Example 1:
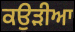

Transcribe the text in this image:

ਕਉੜੀਆ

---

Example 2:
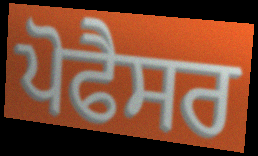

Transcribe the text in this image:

ਪੋਫੈਸਰ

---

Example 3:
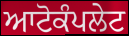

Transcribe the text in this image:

ਆਟੋਕੰਪਲੇਟ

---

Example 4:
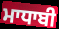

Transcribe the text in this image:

ਮਾਧਾਬੀ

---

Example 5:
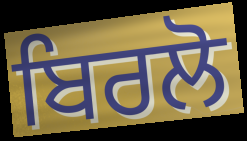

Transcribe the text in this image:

ਬਿਰਲੋ